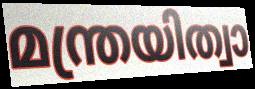
മന്ത്രയിത്വാ